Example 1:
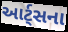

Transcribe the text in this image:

આર્ટ્સના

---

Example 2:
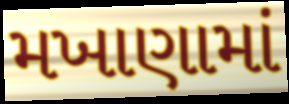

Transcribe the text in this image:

મખાણામાં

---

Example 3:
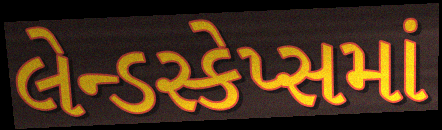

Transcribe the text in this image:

લેન્ડસ્કેપ્સમાં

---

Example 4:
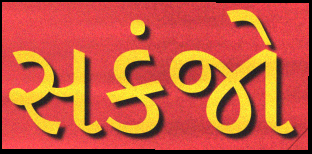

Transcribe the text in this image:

સકંજો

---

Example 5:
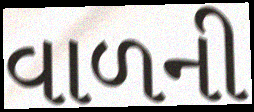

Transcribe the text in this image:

વાળની